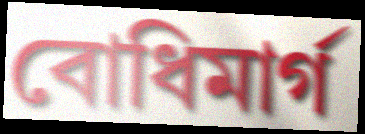
বোধিমার্গ